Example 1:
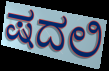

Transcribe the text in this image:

ಷದಲಿ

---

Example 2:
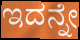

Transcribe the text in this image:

ಇದನ್ನೇ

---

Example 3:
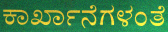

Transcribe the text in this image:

ಕಾರ್ಖಾನೆಗಳಂತೆ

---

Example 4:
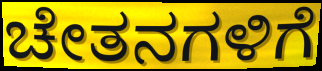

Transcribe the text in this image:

ಚೇತನಗಳಿಗೆ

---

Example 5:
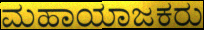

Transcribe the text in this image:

ಮಹಾಯಾಜಕರು